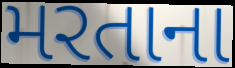
મરતાના